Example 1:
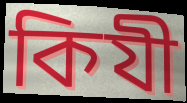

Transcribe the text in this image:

কিযী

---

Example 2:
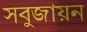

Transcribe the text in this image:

সবুজায়ন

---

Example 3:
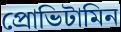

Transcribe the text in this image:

প্রোভিটামিন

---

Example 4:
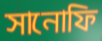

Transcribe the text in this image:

সানোফি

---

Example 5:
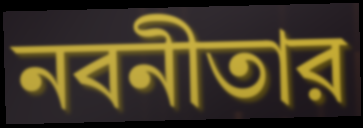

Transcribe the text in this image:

নবনীতার